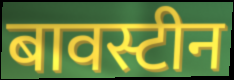
बावस्टीन